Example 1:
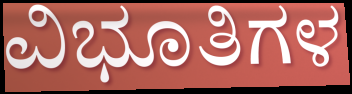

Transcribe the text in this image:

ವಿಭೂತಿಗಳ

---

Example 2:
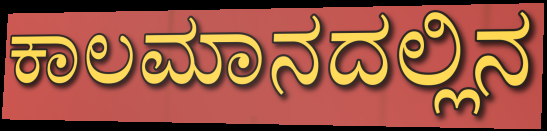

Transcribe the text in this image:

ಕಾಲಮಾನದಲ್ಲಿನ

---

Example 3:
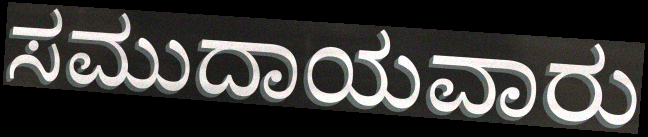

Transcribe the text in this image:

ಸಮುದಾಯವಾರು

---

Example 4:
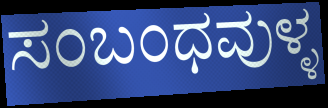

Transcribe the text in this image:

ಸಂಬಂಧವುಳ್ಳ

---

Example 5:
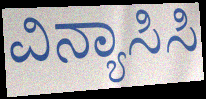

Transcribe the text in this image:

ವಿನ್ಯಾಸಿಸಿ